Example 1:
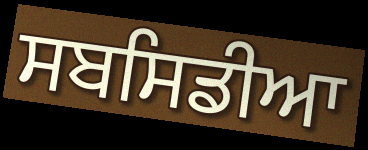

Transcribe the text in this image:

ਸਬਸਿਡੀਆ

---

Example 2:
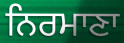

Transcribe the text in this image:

ਨਿਰਮਾਣਾ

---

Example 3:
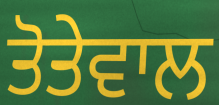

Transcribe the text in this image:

ਤੋਤੇਵਾਲ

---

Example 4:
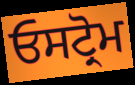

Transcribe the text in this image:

ਓਸਟ੍ਰੋਮ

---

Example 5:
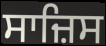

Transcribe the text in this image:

ਸਾਜ਼ਿਸ